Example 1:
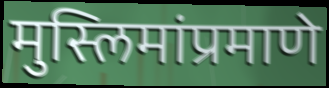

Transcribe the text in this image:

मुस्लिमांप्रमाणे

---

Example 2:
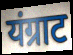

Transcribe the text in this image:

यंग्राट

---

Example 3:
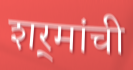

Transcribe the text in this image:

शर्मांची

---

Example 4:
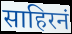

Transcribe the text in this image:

साहिरनं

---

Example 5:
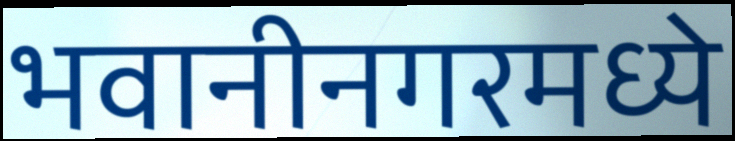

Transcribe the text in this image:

भवानीनगरमध्ये